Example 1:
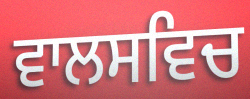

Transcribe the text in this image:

ਵਾਲਸਵਿਚ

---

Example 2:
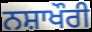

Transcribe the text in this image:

ਨਸ਼ਾਖੌਰੀ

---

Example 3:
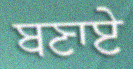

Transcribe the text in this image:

ਬਣਾਏ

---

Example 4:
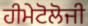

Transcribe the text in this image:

ਹੀਮੇਟੋਲੋਜੀ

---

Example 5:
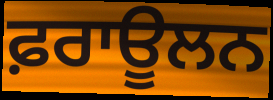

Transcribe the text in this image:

ਫ਼ਰਾਊਲਨ